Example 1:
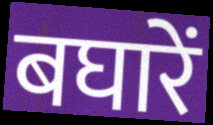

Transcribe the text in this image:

बघारें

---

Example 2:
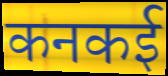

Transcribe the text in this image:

कनकई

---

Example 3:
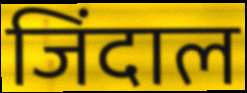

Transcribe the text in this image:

जिंदाल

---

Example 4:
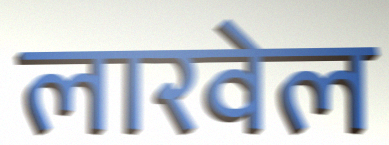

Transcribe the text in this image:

लारवेल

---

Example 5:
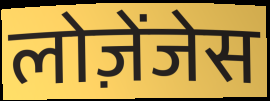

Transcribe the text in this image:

लोज़ेंजेस